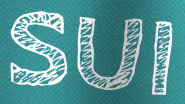
SUI